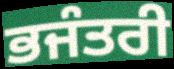
ਭਜੰਤਰੀ